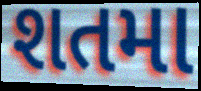
શતમા